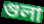
গুলা